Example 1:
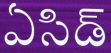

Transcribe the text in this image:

ఏసిడ్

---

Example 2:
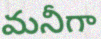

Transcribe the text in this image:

మనీగా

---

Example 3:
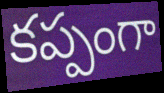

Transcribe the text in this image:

కప్పంగా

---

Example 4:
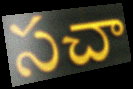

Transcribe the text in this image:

సచా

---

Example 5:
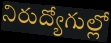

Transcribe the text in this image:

నిరుద్యోగుల్లో